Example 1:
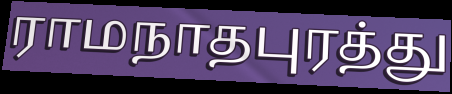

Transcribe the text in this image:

ராமநாதபுரத்து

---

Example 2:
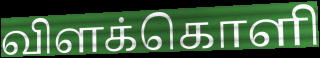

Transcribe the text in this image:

விளக்கொளி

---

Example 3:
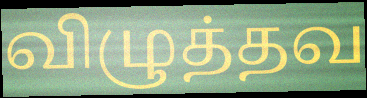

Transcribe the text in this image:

விழுத்தவ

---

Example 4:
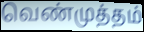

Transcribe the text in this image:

வெண்முத்தம்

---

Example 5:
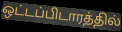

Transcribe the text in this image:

ஒட்டப்பிடாரத்தில்